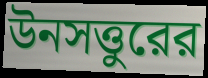
উনসত্তুরের